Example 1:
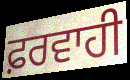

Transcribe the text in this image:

ਫ਼ਰਵਾਹੀ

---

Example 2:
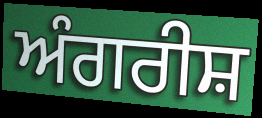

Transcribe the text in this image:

ਅੰਗਰੀਸ਼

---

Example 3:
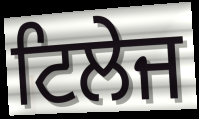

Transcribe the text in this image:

ਟਿਲੇਜ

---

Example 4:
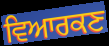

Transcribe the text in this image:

ਵਿਆਰਕਣ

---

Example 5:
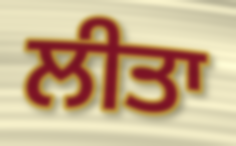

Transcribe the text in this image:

ਲੀਤਾ